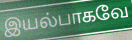
இயல்பாகவே